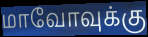
மாவோவுக்கு